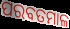
ପରବତମାଳ